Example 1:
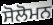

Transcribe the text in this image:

ਸੋਲੋਮਨ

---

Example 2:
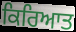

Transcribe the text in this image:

ਕਿਰਿਆਤ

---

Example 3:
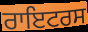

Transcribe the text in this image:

ਰਾਇਟਰਸ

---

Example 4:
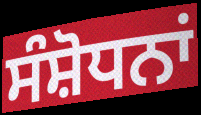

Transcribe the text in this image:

ਸੰਸ਼ੋਧਨਾਂ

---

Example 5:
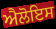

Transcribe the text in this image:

ਐਲੋਇਸ